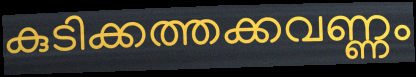
കുടിക്കത്തക്കവണ്ണം